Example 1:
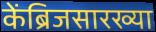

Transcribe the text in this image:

केंब्रिजसारख्या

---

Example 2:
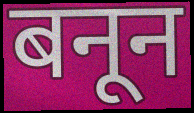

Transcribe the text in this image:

बनून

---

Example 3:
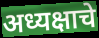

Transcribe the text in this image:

अध्यक्षाचे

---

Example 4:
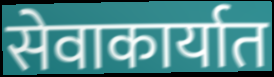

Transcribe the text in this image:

सेवाकार्यात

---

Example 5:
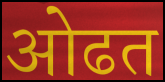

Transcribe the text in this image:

ओढत